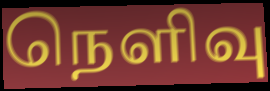
நெளிவு